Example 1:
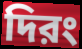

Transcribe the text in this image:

দিরং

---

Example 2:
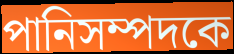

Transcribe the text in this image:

পানিসম্পদকে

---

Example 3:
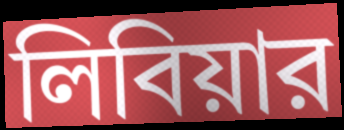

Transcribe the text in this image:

লিবিয়ার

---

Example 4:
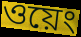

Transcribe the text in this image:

ওয়েং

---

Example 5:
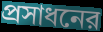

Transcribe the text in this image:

প্রসাধনের